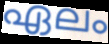
ഏലം